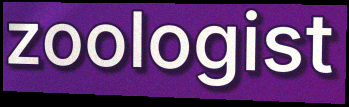
zoologist